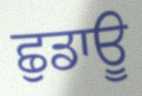
ਛੁਡਾਊ